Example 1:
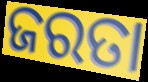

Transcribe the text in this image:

ଜରତା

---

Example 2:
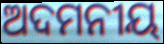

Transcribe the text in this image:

ଅଦମନୀୟ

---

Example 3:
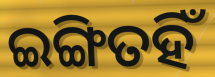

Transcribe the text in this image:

ଇଙ୍ଗିତହିଁ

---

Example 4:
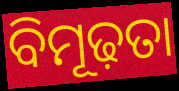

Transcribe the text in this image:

ବିମୂଢ଼ତା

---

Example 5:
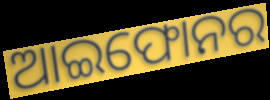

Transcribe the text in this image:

ଆଇଫୋନର